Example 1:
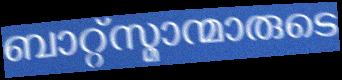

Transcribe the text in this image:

ബാറ്റ്സ്മാന്മാരുടെ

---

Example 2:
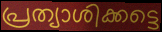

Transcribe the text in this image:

പ്രത്യാശിക്കട്ടെ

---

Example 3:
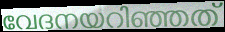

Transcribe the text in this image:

വേദനയറിഞ്ഞത്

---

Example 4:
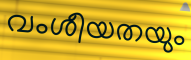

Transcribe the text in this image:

വംശീയതയും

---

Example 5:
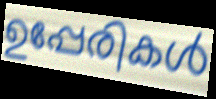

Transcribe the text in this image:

ഉപ്പേരികൾ